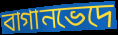
বাগানভেদে